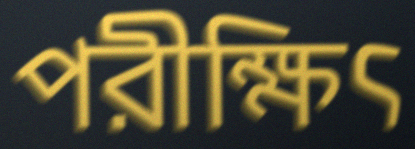
পরীক্ষিৎ